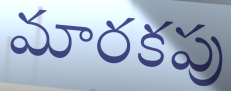
మారకపు